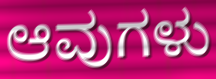
ಆವುಗಳು